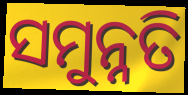
ସମୁନ୍ନତି